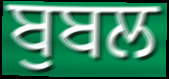
ਬੁਬਲ